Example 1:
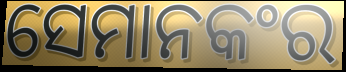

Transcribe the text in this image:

ସେମାନକଂର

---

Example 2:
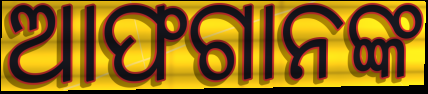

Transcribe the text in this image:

ଆଫଗାନଙ୍କ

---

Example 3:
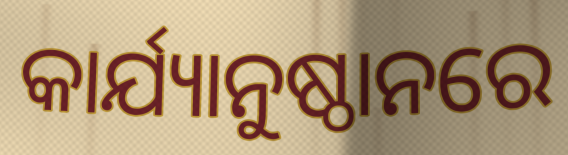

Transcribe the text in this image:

କାର୍ଯ୍ୟାନୁଷ୍ଠାନରେ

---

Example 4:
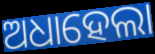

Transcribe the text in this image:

ଅଧାହେଲା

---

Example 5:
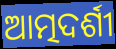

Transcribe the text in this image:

ଆତ୍ମଦର୍ଶୀ